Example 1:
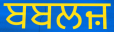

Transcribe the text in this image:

ਬਬਲਜ਼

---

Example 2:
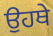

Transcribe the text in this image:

ਉਹਥੇ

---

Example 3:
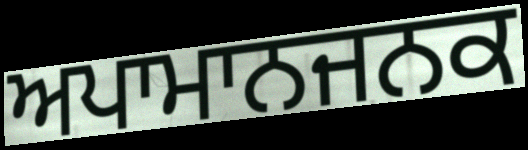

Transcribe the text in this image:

ਅਪਾਮਾਨਜਨਕ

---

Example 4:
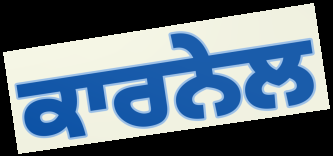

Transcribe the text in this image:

ਕਾਰਨੇਲ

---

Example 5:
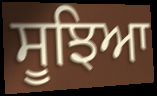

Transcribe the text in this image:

ਸੂਝਿਆ